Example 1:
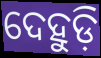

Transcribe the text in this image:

ଦେହୁଡ଼ି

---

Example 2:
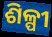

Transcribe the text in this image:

ଶିଳ୍ପୀ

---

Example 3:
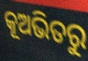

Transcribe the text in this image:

କୂଅଭିତରୁ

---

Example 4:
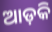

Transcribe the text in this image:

ଆଡ଼କି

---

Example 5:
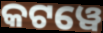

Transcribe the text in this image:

କଟୱେ